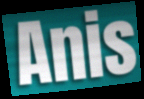
Anis